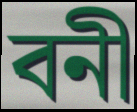
বনী